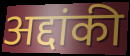
अद्दांकी